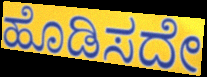
ಹೊಡಿಸದೇ